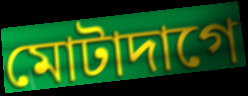
মোটাদাগে